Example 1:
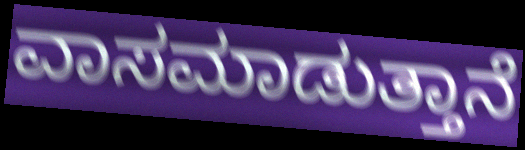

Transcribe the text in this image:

ವಾಸಮಾಡುತ್ತಾನೆ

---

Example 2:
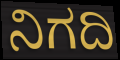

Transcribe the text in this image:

ನಿಗದಿ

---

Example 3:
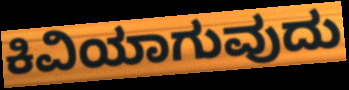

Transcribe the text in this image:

ಕಿವಿಯಾಗುವುದು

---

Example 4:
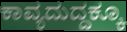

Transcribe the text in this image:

ಕಾವ್ಯದುದ್ದಕ್ಕೂ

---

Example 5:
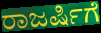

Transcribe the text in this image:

ರಾಜರ್ಷಿಗೆ